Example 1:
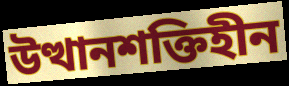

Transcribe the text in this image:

উত্থানশক্তিহীন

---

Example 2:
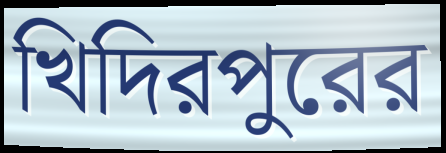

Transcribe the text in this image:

খিদিরপুরের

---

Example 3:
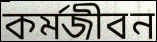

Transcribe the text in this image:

কর্মজীবন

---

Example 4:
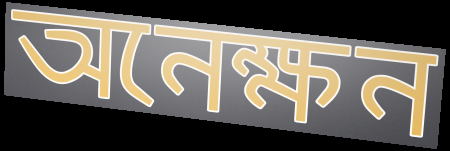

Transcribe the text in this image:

অনেক্ষন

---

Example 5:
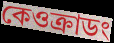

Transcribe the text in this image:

কেওক্রাডং